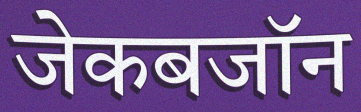
जेकबजॉन